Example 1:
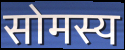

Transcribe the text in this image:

सोमस्य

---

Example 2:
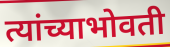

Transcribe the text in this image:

त्यांच्याभोवती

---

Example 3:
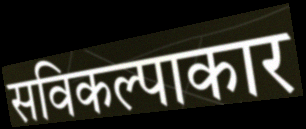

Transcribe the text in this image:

सविकल्पाकार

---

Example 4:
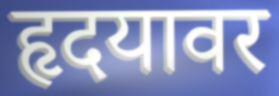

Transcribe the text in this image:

हृदयावर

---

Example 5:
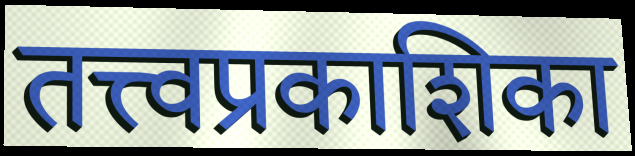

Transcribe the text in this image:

तत्त्वप्रकाशिका